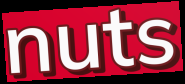
nuts